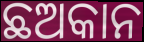
ଛଅକାନ